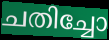
ചതിച്ചോ